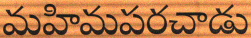
మహిమపరచాడు